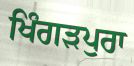
ਖਿੰਗੜਪੁਰਾ